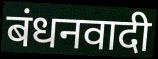
बंधनवादी